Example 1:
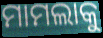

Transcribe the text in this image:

ମାମଲାକୁ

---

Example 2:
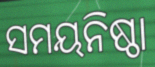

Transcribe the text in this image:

ସମୟନିଷ୍ଠା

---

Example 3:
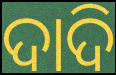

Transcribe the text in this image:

ଦାଦି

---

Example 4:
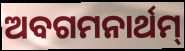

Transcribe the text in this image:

ଅବଗମନାର୍ଥମ୍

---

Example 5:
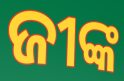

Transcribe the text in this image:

ଜୀଙ୍କ